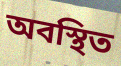
অবস্থিত